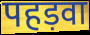
पहड़वा